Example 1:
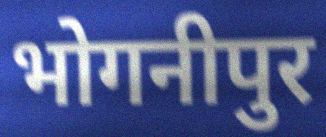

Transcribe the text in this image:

भोगनीपुर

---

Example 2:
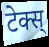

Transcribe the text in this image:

टेक्स्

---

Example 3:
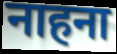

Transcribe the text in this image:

नाहना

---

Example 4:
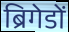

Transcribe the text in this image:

ब्रिगेडों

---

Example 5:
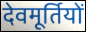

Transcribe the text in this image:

देवमूर्तियों